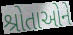
શ્રોતાઓને